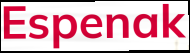
Espenak